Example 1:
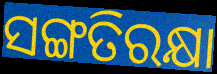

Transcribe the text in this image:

ସଙ୍ଗତିରକ୍ଷା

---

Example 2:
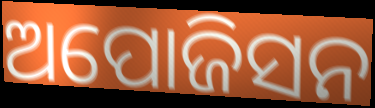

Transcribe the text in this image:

ଅପୋଜିସନ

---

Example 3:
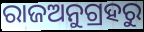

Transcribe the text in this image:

ରାଜଅନୁଗ୍ରହରୁ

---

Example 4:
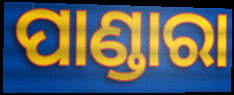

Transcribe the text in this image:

ପାଣ୍ଡାରା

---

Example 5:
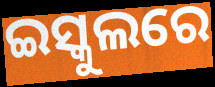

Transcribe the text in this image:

ଇସ୍କୁଲରେ